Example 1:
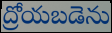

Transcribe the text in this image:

ద్రోయబడెను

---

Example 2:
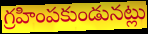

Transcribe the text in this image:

గ్రహింపకుండునట్లు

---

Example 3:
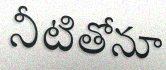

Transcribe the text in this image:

నీటితోనూ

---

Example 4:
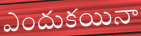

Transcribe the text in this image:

ఎందుకయినా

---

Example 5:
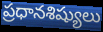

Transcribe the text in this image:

ప్రధానశిష్యులు